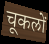
चूकलों